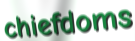
chiefdoms